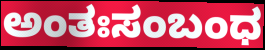
ಅಂತಃಸಂಬಂಧ